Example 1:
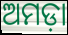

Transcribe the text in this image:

ଅମଡ଼ା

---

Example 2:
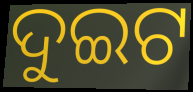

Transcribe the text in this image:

ଦୁଇଟ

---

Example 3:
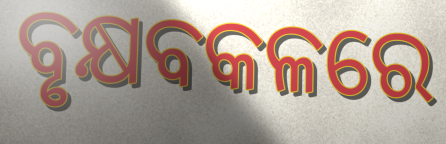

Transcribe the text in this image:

ବୃକ୍ଷବକଳରେ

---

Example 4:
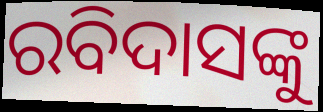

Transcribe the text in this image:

ରବିଦାସଙ୍କୁ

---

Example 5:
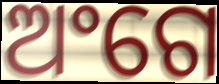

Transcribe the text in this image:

ଅଂଗେ